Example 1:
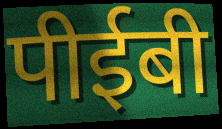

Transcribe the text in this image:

पीईबी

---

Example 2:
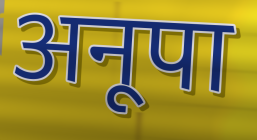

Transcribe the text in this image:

अनूपा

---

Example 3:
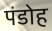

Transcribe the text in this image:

पंडोह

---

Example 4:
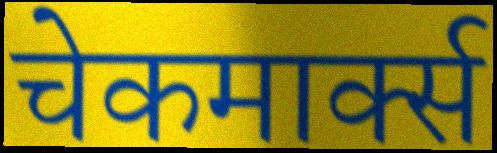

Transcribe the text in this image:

चेकमार्क्स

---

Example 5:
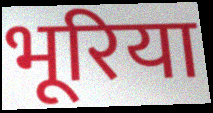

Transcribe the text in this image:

भूरिया